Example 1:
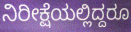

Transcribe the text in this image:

ನಿರೀಕ್ಷೆಯಲ್ಲಿದ್ದರೂ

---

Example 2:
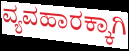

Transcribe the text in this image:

ವ್ಯವಹಾರಕ್ಕಾಗಿ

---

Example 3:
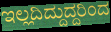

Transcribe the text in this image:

ಇಲ್ಲದಿದ್ದುದ್ದರಿಂದ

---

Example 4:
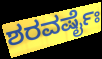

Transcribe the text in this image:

ಶರವರ್ಷೈಃ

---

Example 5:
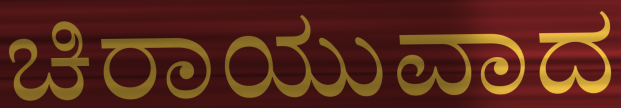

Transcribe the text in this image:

ಚಿರಾಯುವಾದ